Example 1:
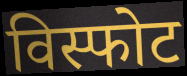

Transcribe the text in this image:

विस्फोट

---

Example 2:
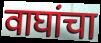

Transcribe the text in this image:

वाघांचा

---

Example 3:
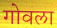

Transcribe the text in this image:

गोवला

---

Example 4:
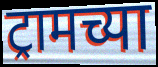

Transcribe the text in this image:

ट्रामच्या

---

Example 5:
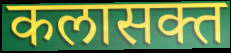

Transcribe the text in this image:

कलासक्त